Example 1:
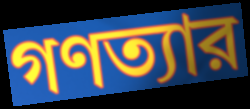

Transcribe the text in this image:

গণত্যার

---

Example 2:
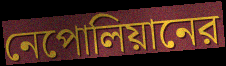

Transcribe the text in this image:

নেপোলিয়ানের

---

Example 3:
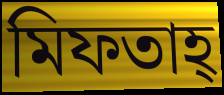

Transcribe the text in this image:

মিফতাহ্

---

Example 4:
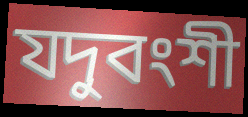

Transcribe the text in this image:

যদুবংশী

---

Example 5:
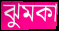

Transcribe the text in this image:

ঝুমকা